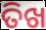
ତିଖ